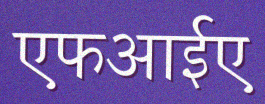
एफआईए